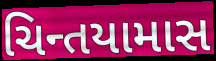
ચિન્તયામાસ